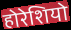
होरेशियो